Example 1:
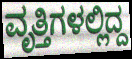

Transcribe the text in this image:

ವೃತ್ತಿಗಳಲ್ಲಿದ್ದ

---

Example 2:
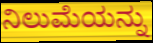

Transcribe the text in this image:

ನಿಲುಮೆಯನ್ನು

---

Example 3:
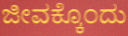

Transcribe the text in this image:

ಜೀವಕ್ಕೊಂದು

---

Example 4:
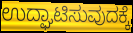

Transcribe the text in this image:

ಉದ್ಘಾಟಿಸುವುದಕ್ಕೆ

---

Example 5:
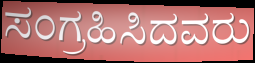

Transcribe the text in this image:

ಸಂಗ್ರಹಿಸಿದವರು